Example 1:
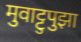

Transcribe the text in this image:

मुवाट्टुपुझा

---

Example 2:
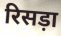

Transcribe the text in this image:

रिसड़ा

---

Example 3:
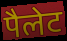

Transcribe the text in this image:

पैलेट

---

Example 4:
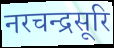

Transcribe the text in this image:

नरचन्द्रसूरि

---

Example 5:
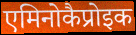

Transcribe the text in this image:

एमिनोकैप्रोइक